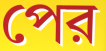
পের